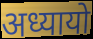
अध्यायो